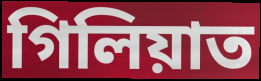
গিলিয়াত